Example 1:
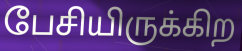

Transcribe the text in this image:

பேசியிருக்கிற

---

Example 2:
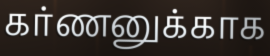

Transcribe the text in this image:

கர்ணனுக்காக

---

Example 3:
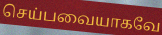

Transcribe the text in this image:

செய்பவையாகவே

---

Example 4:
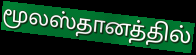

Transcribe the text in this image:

மூலஸ்தானத்தில்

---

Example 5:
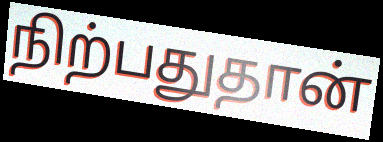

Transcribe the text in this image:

நிற்பதுதான்